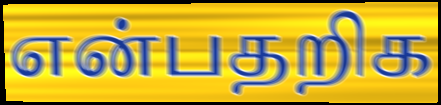
என்பதறிக